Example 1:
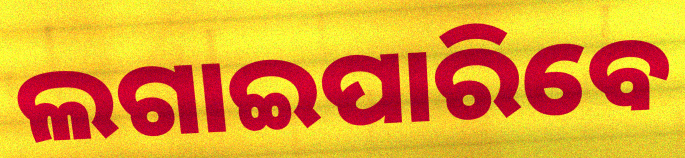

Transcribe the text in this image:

ଲଗାଇପାରିବେ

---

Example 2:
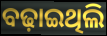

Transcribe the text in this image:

ବଢ଼ାଇଥିଲି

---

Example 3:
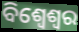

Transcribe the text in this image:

ବିଶ୍ୱେଶ୍ୱର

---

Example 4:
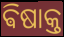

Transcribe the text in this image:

ଵିଷାକ୍ତ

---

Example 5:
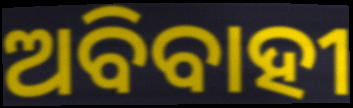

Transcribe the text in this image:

ଅବିବାହୀ